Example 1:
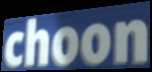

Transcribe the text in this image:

choon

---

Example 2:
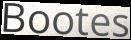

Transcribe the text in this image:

Bootes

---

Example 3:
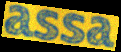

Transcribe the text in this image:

assa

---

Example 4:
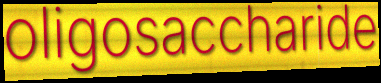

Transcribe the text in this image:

oligosaccharide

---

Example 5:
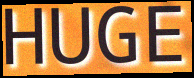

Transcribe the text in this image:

HUGE